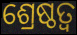
ଶ୍ରେଷ୍ଠତ୍ବ